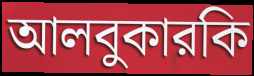
আলবুকারকি